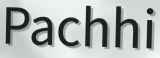
Pachhi